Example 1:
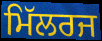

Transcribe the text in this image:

ਮਿੱਲਰਜ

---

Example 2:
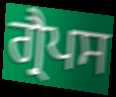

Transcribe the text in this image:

ਗ੍ਰੈਪਸ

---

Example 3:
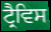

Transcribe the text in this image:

ਟ੍ਰੈਵਿਸ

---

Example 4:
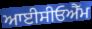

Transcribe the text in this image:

ਆਈਸੀਓਐੱਮ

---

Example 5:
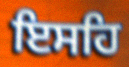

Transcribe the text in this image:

ਇਸਹਿ